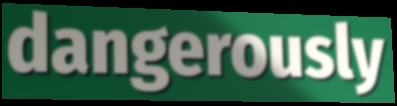
dangerously